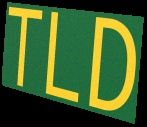
TLD